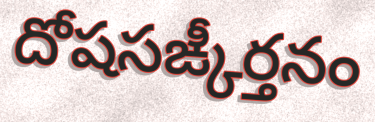
దోషసఙ్కీర్తనం